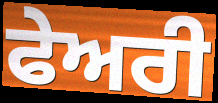
ਫੇਅਰੀ